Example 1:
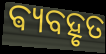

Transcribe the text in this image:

ଵ୍ୟବହୃତ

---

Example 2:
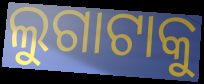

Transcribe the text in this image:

ଲୁଗାଟାକୁ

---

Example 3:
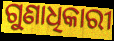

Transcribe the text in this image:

ଗୁଣାଧିକାରୀ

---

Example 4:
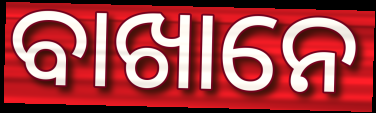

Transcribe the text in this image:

ବାଖାନେ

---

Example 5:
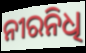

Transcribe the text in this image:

ନୀରନିଧି